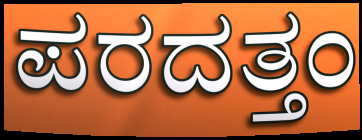
ಪರದತ್ತಂ